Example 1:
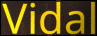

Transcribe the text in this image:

Vidal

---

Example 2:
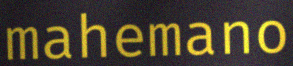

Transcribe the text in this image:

mahemano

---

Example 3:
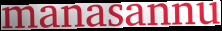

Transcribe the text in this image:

manasannu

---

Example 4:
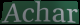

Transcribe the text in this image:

Achar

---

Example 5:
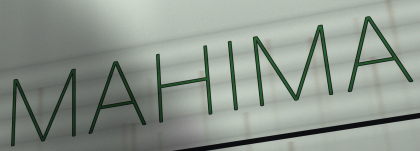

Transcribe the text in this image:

MAHIMA